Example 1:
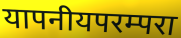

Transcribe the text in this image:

यापनीयपरम्परा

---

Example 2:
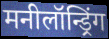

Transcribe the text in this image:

मनीलॉन्ड्रिंग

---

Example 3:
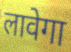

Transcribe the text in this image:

लावेगा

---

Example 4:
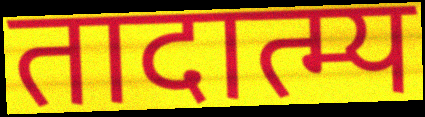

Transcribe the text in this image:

तादात्म्य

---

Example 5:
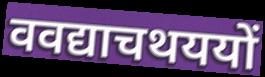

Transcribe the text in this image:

ववद्याचथययों